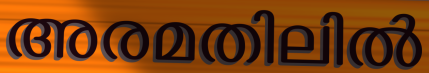
അരമതിലിൽ